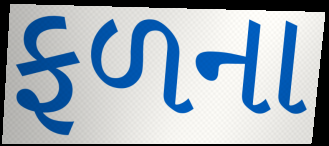
ફળના